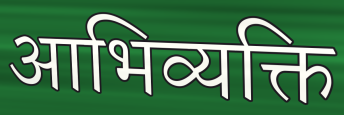
आभिव्यक्ति